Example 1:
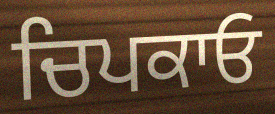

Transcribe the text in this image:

ਚਿਪਕਾਓ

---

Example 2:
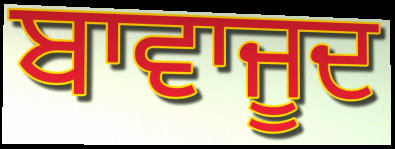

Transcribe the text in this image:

ਬਾਵਾਜੂਦ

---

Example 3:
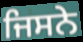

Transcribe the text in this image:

ਜਿਸਨੇ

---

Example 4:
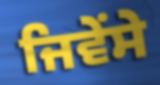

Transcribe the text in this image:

ਜਿਵੇਂਸੇ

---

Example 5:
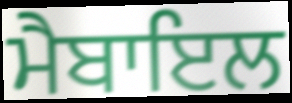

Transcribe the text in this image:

ਮੈਬਾਇਲ